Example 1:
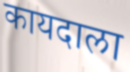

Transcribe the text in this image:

कायदाला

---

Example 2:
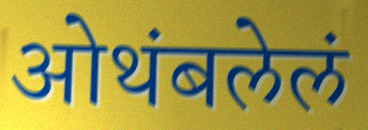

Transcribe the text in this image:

ओथंबलेलं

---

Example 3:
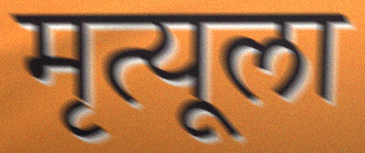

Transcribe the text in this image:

मृत्यूला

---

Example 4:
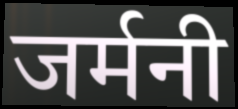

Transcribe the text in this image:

जर्मनी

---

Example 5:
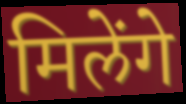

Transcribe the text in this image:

मिलेंगे